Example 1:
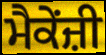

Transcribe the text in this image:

ਮੈਕੇਂਜ਼ੀ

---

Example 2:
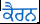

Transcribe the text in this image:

ਕੈਰਨ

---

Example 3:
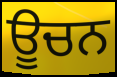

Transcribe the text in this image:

ਊਚਨ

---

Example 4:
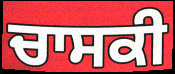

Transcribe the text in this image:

ਚਾਸਕੀ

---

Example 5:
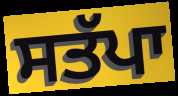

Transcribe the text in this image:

ਸਤੱਪਾ